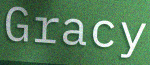
Gracy